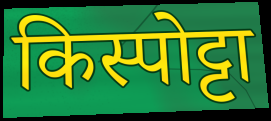
किस्पोट्टा